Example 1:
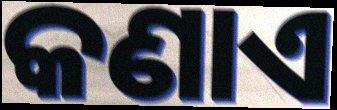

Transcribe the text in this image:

କଣାଏ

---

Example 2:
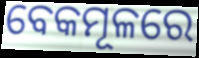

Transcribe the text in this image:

ବେକମୂଳରେ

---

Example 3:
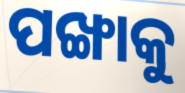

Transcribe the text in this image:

ପଙ୍ଖାକୁ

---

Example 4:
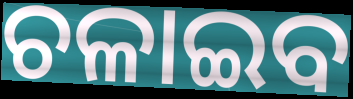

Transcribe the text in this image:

ଚଳାଇବ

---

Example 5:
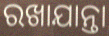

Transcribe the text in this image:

ରଖାଯାନ୍ତା